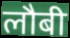
लौबी